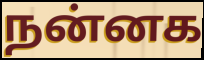
நன்னக